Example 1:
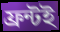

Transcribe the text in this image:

ফ্রন্টই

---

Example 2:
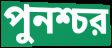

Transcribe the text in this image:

পুনশ্চর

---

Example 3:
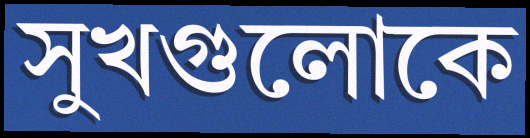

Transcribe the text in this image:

সুখগুলোকে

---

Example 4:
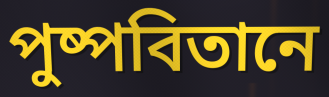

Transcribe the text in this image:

পুষ্পবিতানে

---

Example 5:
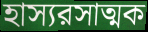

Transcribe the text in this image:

হাস্যরসাত্মক